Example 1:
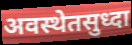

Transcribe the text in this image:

अवस्थेतसुध्दा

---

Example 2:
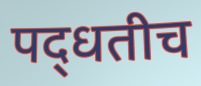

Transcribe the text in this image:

पद्धतीच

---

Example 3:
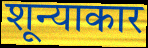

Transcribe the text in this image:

शून्याकार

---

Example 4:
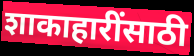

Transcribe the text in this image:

शाकाहारींसाठी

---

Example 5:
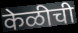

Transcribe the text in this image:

केळीची